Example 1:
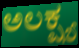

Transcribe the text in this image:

ಅಲಕ್ಷ್ಯ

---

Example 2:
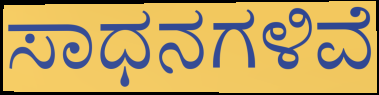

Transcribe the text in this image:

ಸಾಧನಗಳಿವೆ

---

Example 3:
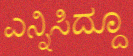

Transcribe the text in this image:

ಎನ್ನಿಸಿದ್ದೂ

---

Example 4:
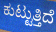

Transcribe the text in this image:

ಕುಟ್ಟುತ್ತಿದೆ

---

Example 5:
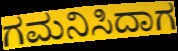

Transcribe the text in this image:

ಗಮನಿಸಿದಾಗ